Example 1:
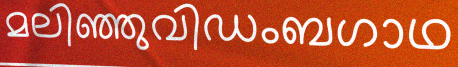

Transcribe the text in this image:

മലിഞ്ഞുവിഡംബഗാഥ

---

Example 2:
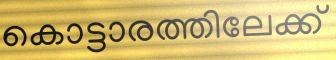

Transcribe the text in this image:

കൊട്ടാരത്തിലേക്ക്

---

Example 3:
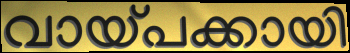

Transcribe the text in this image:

വായ്പക്കായി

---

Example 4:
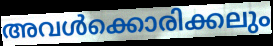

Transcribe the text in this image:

അവൾക്കൊരിക്കലും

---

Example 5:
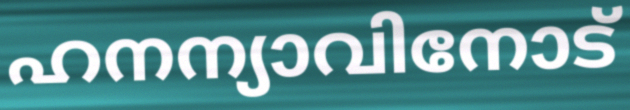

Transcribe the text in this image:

ഹനന്യാവിനോട്